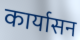
कार्यासन